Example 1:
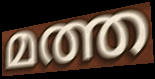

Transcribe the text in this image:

മത്ത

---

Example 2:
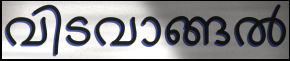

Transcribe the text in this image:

വിടവാങ്ങൽ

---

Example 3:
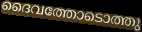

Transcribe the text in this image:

ദൈവത്തോടൊത്തു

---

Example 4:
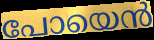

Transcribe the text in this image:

പോയെൻ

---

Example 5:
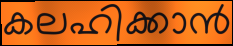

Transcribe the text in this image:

കലഹിക്കാൻ